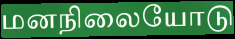
மனநிலையோடு